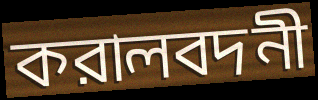
করালবদনী